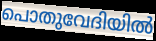
പൊതുവേദിയിൽ